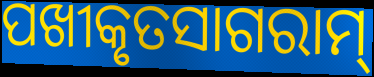
ପଖୀକୃତସାଗରାମ୍